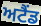
ਅਟੈਂਡ